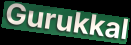
Gurukkal